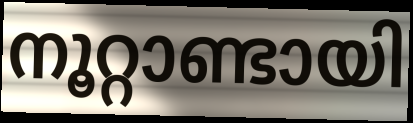
നൂറ്റാണ്ടായി